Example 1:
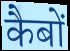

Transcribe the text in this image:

कैबों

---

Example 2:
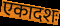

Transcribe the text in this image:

एकादशः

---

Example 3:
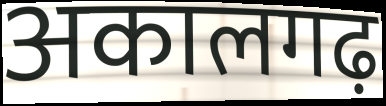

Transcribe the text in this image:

अकालगढ़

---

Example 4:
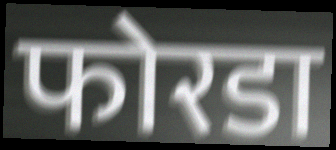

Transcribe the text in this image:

फोरडा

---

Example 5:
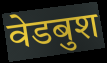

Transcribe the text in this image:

वेडबुश